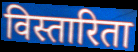
विस्तारिता